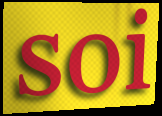
soi